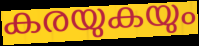
കരയുകയും